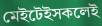
মেইটেইসকলেই